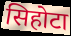
सिहोटा